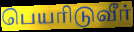
பெயரிடுவீர்